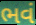
ભવં